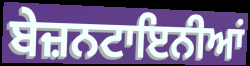
ਬੇਜ਼ਨਟਾਇਨੀਆਂ